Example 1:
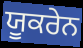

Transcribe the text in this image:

ਯੂਕਰੇਨ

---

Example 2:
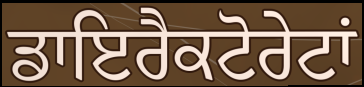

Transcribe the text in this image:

ਡਾਇਰੈਕਟੋਰੇਟਾਂ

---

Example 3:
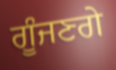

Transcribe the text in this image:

ਗੂੰਜਣਗੇ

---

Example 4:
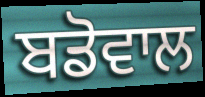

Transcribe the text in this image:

ਬਡੋਵਾਲ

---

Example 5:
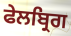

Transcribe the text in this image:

ਫੇਲਬ੍ਰਿਗ